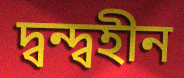
দ্বন্দ্বহীন